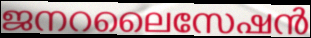
ജനറലൈസേഷൻ